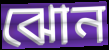
ঝোন